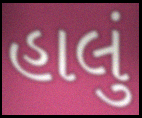
હાલું